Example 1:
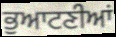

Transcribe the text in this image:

ਭੁਆਟਣੀਆਂ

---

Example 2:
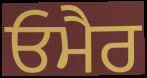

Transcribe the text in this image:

ਓਮੈਰ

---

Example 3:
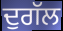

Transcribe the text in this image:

ਦੁਗੱਲ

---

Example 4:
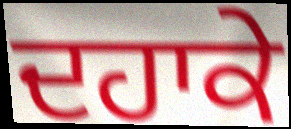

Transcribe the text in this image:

ਦਹਾਕੇ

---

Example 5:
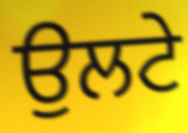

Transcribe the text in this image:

ਉਲਟੇ